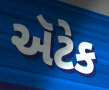
ઍટેક